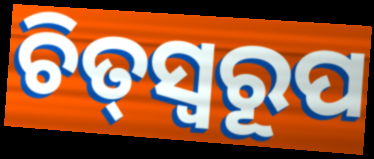
ଚିତ୍‌ସ୍ୱରୂପ